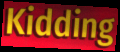
Kidding